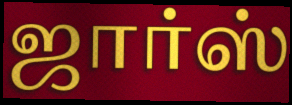
ஜார்ஸ்